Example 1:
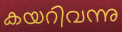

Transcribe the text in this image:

കയറിവന്നു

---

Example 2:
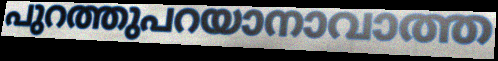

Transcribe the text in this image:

പുറത്തുപറയാനാവാത്ത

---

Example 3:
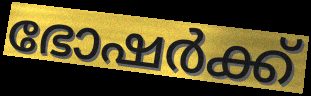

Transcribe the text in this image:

ഭോഷർക്ക്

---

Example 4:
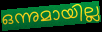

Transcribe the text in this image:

ഒന്നുമായില്ല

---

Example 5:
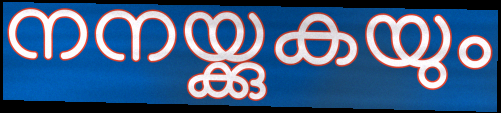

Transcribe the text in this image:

നനയ്ക്കുകയും